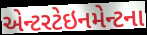
એન્ટરટેઇનમેન્ટના